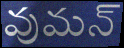
వుమన్